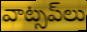
వాట్సప్‌లు